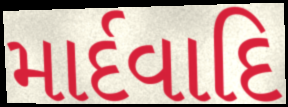
માર્દવાદિ